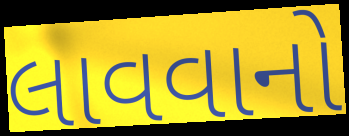
લાવવાનો